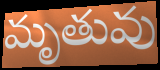
మృతువు